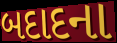
બદાદના